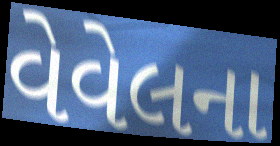
વેવેલના